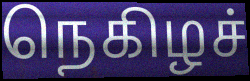
நெகிழச்